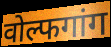
वोल्फगांग